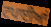
ਟਪਾਈਆਂ